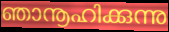
ഞാനൂഹിക്കുന്നു